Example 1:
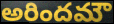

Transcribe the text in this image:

అరిందమౌ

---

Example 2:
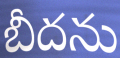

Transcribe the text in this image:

బీదను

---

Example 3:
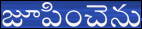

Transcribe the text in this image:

జూపించెను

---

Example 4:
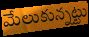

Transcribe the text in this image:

మేలుకున్నట్టు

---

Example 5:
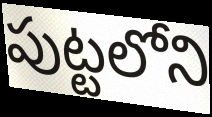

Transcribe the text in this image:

పుట్టలోని